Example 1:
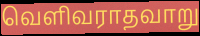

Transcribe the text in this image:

வெளிவராதவாறு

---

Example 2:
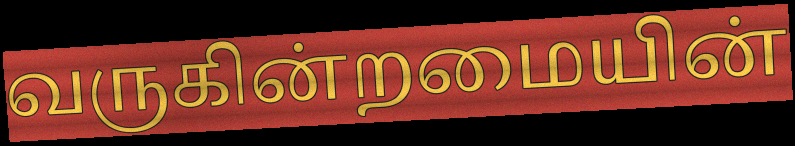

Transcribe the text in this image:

வருகின்றமையின்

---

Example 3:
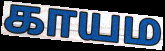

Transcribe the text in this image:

காயம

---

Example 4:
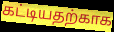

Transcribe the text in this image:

கட்டியதற்காக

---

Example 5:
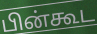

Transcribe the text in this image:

பின்கூட